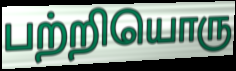
பற்றியொரு